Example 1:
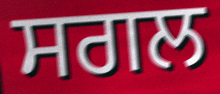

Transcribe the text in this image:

ਸਗਲ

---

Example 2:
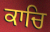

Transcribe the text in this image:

ਕਾਚਿ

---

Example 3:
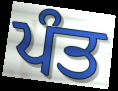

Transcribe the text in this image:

ਪੰਤ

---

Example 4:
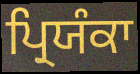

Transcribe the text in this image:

ਪ੍ਰਿਯੰਕਾ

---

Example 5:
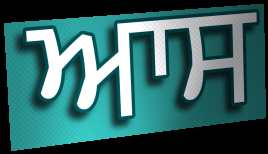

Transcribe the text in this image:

ਆਸ